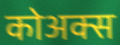
कोअक्स